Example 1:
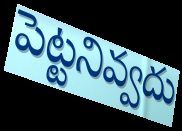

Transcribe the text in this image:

పెట్టనివ్వదు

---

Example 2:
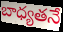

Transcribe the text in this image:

బాధ్యతనే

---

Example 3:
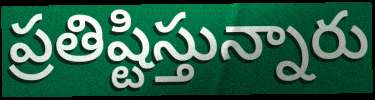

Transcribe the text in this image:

ప్రతిష్టిస్తున్నారు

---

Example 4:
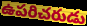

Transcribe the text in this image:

ఉపరిచరుడు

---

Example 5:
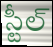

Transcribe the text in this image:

స్టీల్